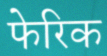
फेरिक